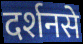
दर्शनसे